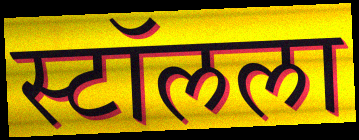
स्टॉलला